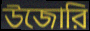
উজোরি